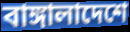
বাঙ্গালাদেশে